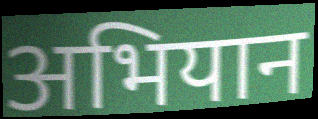
अभियान